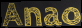
Anao